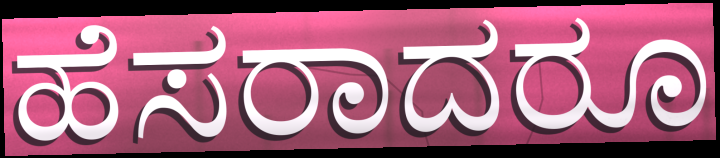
ಹೆಸರಾದರೂ